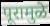
पूरामुळे